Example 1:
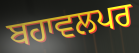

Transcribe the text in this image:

ਬਹਾਵਲਪਰ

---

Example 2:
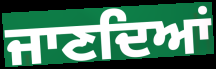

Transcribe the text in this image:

ਜਾਣਦਿਆਂ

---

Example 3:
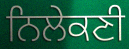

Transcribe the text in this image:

ਨਿਲੇਕਣੀ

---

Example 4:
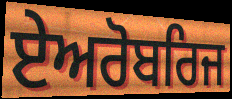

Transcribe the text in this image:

ਏਅਰੋਬਰਿਜ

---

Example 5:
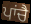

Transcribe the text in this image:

ਪਾਂਚੈ